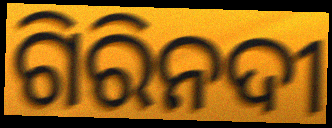
ଗିରିନଦୀ